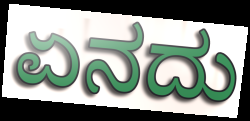
ಏನದು